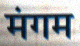
मंगम